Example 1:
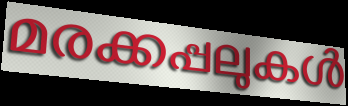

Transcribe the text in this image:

മരക്കപ്പലുകൾ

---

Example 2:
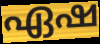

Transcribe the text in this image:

ഏഷ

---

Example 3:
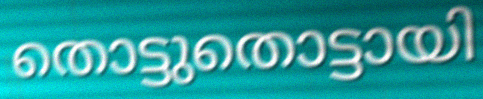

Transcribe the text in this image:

തൊട്ടുതൊട്ടായി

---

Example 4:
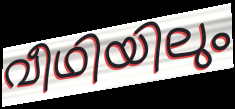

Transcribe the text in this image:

വീഥിയിലും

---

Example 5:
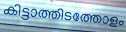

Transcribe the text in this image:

കിട്ടാത്തിടത്തോളം